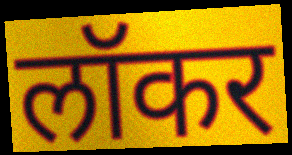
लॉकर